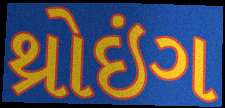
થ્રોઇંગ